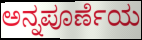
ಅನ್ನಪೂರ್ಣೆಯ